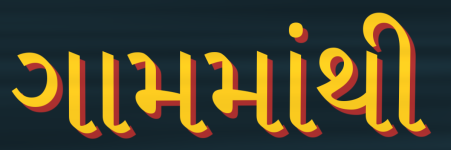
ગામમાંથી